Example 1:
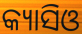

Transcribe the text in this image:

କ୍ୟାସିଓ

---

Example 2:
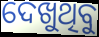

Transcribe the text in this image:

ଦେଖୁଥିବୁ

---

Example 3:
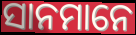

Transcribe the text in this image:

ସାନମାନେ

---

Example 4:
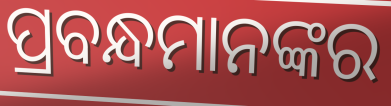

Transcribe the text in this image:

ପ୍ରବନ୍ଧମାନଙ୍କର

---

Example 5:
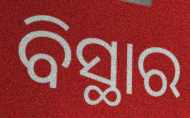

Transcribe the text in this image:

ବିସ୍ଥାର